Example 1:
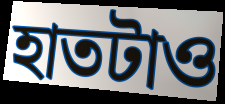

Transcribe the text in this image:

হাতটাও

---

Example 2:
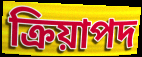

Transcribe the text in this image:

ক্রিয়াপদ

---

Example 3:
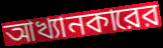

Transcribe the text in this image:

আখ্যানকারের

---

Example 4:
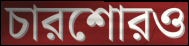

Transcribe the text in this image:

চারশোরও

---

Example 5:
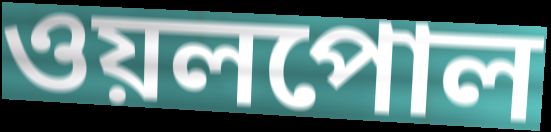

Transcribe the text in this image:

ওয়লপোল